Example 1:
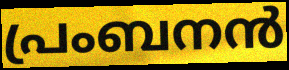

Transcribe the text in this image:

പ്രംബനൻ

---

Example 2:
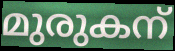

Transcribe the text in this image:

മുരുകന്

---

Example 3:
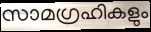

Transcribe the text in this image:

സാമഗ്രഹികളും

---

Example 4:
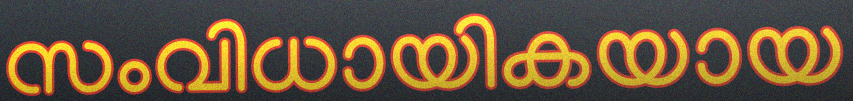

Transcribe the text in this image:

സംവിധായികയായ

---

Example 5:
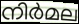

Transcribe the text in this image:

നിർമല